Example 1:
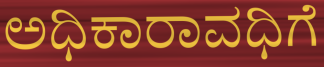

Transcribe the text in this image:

ಅಧಿಕಾರಾವಧಿಗೆ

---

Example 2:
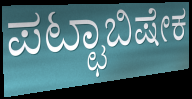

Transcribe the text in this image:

ಪಟ್ಟಾಬಿಷೇಕ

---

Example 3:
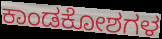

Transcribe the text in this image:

ಕಾಂಡಕೋಶಗಳ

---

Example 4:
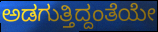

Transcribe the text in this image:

ಅಡಗುತ್ತಿದ್ದಂತೆಯೇ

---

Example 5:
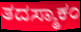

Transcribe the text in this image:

ತದಸ್ಮಾಕಂ